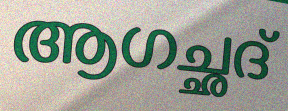
ആഗച്ഛദ്